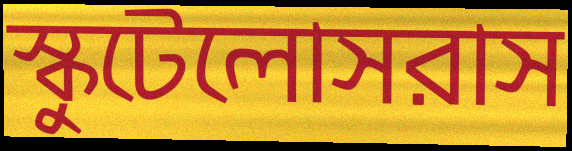
স্কুটেলোসরাস